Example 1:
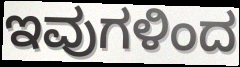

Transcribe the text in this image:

ಇವುಗಳಿಂದ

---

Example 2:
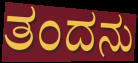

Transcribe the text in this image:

ತಂದನು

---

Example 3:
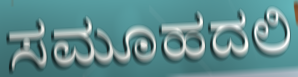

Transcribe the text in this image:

ಸಮೂಹದಲಿ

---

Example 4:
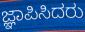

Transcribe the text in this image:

ಜ್ಞಾಪಿಸಿದರು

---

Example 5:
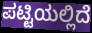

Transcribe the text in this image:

ಪಟ್ಟಿಯಲ್ಲಿದೆ